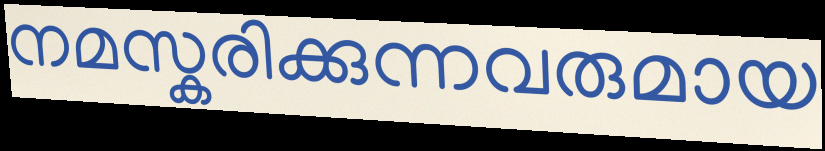
നമസ്കരിക്കുന്നവരുമായ